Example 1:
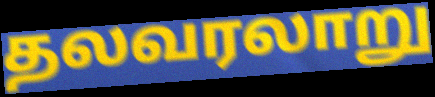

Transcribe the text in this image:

தலவரலாறு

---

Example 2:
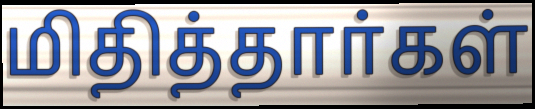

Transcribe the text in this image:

மிதித்தார்கள்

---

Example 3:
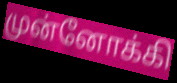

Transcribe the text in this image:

முன்னோக்கி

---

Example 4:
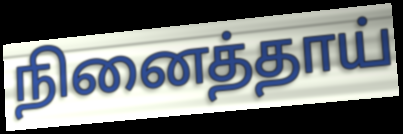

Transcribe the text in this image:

நினைத்தாய்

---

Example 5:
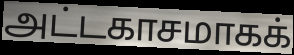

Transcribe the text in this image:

அட்டகாசமாகக்